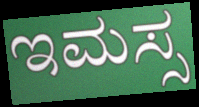
ಇಮಸ್ಸ